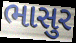
ભાસુર